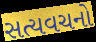
સત્યવચનો